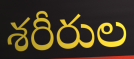
శరీరుల